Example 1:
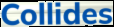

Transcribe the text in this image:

Collides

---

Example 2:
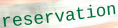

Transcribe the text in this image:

reservation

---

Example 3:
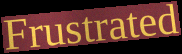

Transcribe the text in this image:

Frustrated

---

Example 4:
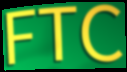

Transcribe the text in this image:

FTC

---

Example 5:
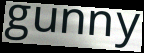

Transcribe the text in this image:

gunny